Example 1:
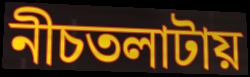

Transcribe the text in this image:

নীচতলাটায়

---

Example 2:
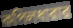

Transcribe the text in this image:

কপিলধারার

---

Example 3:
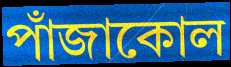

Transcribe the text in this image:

পাঁজাকোল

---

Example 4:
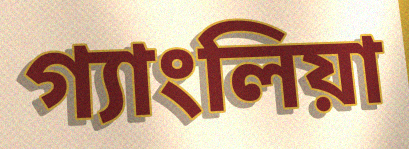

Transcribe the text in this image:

গ্যাংলিয়া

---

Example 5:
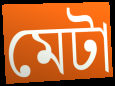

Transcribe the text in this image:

মেটা